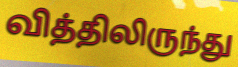
வித்திலிருந்து